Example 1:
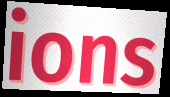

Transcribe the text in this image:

ions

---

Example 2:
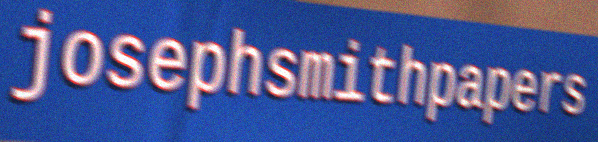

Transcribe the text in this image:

josephsmithpapers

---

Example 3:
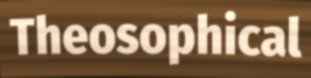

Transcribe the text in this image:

Theosophical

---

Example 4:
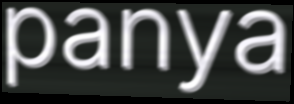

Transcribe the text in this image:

panya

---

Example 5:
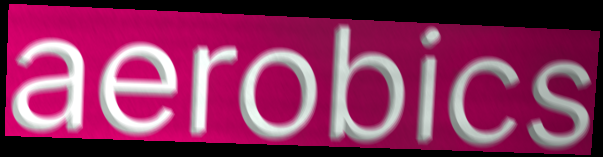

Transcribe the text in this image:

aerobics